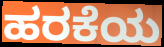
ಹರಕೆಯ